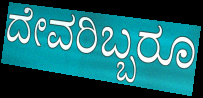
ದೇವರಿಬ್ಬರೂ